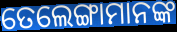
ତେଲେଙ୍ଗାମାନଙ୍କ